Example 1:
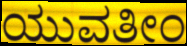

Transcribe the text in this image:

ಯುವತೀಂ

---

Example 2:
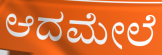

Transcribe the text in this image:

ಆದಮೇಲೆ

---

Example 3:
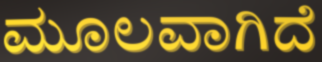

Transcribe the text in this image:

ಮೂಲವಾಗಿದೆ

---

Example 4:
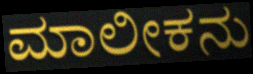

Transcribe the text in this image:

ಮಾಲೀಕನು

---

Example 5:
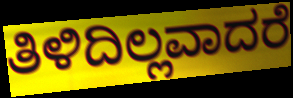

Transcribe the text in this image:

ತಿಳಿದಿಲ್ಲವಾದರೆ